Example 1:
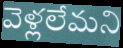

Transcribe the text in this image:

వెళ్లలేమని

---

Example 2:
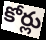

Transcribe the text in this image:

కోర్లు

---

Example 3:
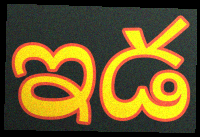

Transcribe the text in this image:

ఇడ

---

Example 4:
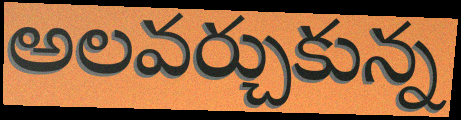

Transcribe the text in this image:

అలవర్చుకున్న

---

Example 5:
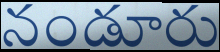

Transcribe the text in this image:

నండూరు